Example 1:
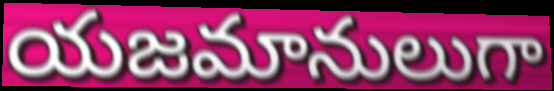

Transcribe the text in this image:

యజమానులుగా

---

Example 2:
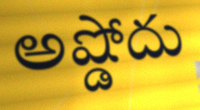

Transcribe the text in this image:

అష్డోదు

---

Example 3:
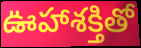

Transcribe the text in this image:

ఊహాశక్తితో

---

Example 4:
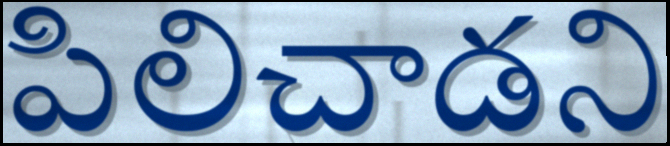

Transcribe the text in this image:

పిలిచాడని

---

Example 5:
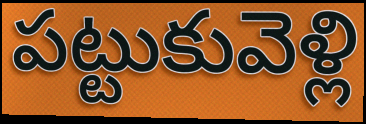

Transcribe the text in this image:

పట్టుకువెళ్లి